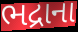
ભદ્રાના